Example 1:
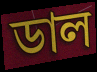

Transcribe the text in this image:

ডাল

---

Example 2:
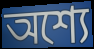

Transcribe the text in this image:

অশ্যে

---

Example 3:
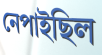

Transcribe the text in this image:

নেপাইছিল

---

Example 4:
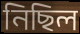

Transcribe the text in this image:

নিছিল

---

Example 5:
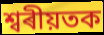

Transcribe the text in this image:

শ্বৰীয়তক